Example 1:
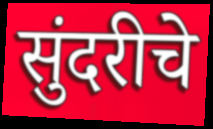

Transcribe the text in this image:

सुंदरीचे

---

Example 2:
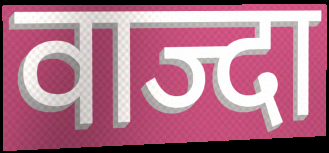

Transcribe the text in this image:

वाज्दा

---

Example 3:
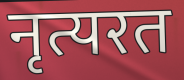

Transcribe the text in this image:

नृत्यरत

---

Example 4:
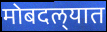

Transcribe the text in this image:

मोबदल्यात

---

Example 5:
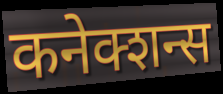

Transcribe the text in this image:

कनेक्शन्स